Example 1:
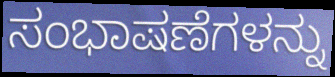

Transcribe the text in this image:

ಸಂಭಾಷಣೆಗಳನ್ನು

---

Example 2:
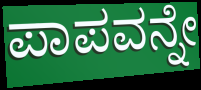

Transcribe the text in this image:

ಪಾಪವನ್ನೇ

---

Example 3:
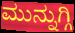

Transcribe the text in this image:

ಮುನ್ನುಗ್ಗಿ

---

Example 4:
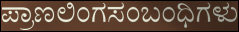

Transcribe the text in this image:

ಪ್ರಾಣಲಿಂಗಸಂಬಂಧಿಗಳು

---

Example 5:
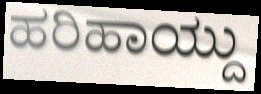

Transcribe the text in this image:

ಹರಿಹಾಯ್ದು